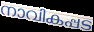
നാവികപ്പട